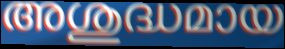
അശുദ്ധമായ